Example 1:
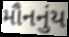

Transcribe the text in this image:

મૌનનુંય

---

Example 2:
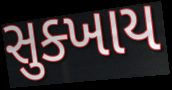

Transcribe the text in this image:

સુક્ખાય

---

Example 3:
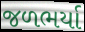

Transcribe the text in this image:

જળભર્યા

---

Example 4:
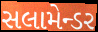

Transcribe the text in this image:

સલામેન્ડર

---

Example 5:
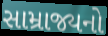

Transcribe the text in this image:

સામ્રાજ્યનો